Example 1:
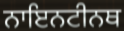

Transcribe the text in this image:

ਨਾਇਨਟੀਨਥ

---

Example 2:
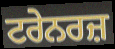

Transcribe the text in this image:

ਟਰੇਨਰਜ਼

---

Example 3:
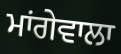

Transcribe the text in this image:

ਮਾਂਗੇਵਾਲਾ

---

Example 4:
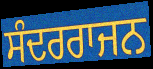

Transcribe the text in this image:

ਸੰਦਰਰਾਜਨ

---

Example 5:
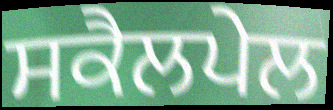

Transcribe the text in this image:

ਸਕੈਲਪੇਲ